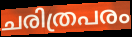
ചരിത്രപരം